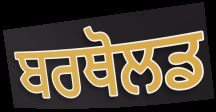
ਬਰਥੋਲਡ